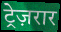
ट्रेज़रार